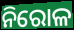
ନିରୋଳ